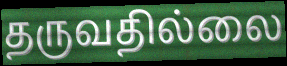
தருவதில்லை